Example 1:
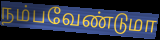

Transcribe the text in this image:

நம்பவேண்டுமா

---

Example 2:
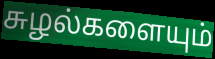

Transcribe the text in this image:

சுழல்களையும்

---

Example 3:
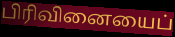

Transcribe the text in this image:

பிரிவினையைப்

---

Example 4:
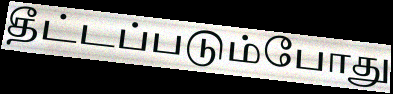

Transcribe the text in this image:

தீட்டப்படும்போது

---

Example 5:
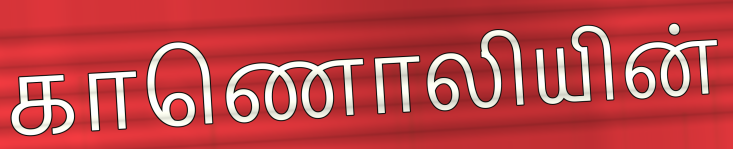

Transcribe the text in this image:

காணொலியின்